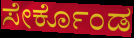
ಸೇರ್ಕೊಂಡ